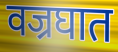
वज्रघात